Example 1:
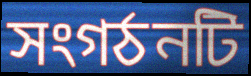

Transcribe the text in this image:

সংগঠনটি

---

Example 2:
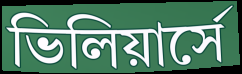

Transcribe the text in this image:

ভিলিয়ার্সে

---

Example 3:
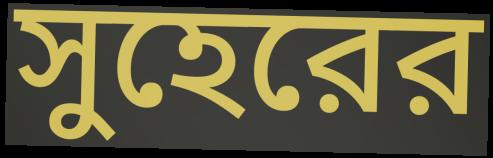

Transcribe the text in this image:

সুহেরের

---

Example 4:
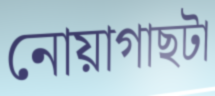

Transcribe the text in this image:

নোয়াগাছটা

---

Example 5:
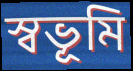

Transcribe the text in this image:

স্বভূমি